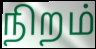
நிறம்